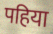
पहिया